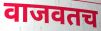
वाजवतच